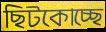
ছিটকোচ্ছে